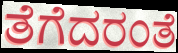
ತೆಗೆದರಂತೆ